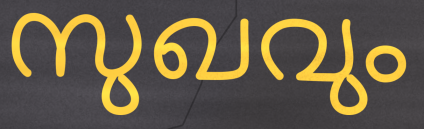
സുഖവും